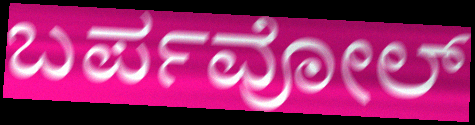
ಬರ್ಪವೋಲ್